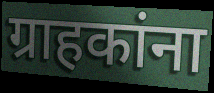
ग्राहकांना